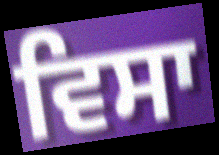
ਵਿਸਾ